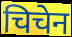
चिचेन